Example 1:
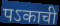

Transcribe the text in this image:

पऽकाची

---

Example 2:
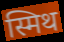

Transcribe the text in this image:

स्मिथ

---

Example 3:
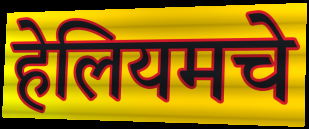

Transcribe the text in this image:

हेलियमचे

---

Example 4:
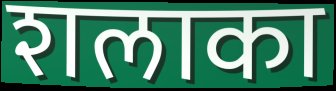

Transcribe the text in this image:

शलाका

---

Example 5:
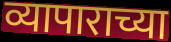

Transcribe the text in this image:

व्यापाराच्या